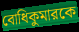
বোধিকুমারকে